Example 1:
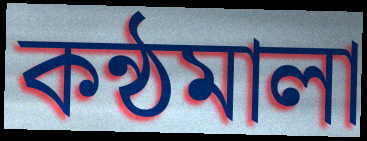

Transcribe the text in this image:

কন্ঠমালা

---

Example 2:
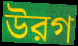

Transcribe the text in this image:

উরগ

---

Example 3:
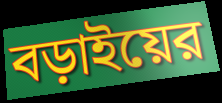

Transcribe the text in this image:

বড়াইয়ের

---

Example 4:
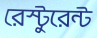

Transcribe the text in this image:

রেস্টুরেন্ট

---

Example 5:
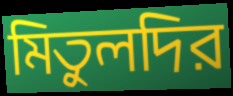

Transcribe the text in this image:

মিতুলদির